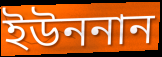
ইউননান